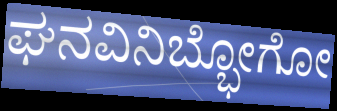
ಘನವಿನಿಬ್ಭೋಗೋ